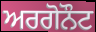
ਅਰਗੋਨੌਟ